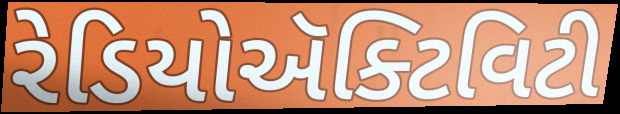
રેડિયોઍક્ટિવિટી